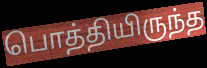
பொத்தியிருந்த